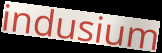
indusium